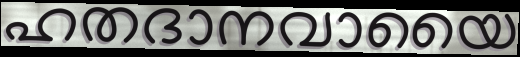
ഹതദാനവായൈ